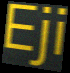
Eji